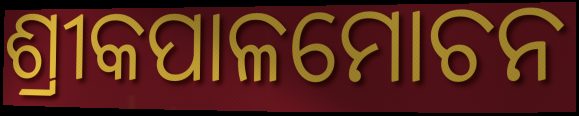
ଶ୍ରୀକପାଳମୋଚନ